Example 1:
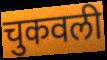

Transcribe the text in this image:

चुकवली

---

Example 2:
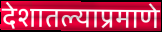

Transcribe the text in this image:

देशातल्याप्रमाणे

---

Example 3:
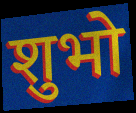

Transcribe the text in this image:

शुभो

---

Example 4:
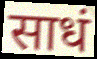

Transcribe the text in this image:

साधं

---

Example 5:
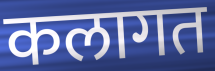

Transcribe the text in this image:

कलागत